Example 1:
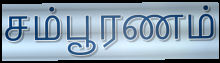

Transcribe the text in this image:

சம்பூரணம்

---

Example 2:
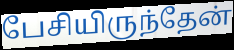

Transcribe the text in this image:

பேசியிருந்தேன்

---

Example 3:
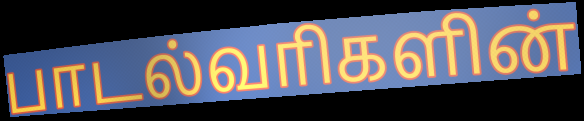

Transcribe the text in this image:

பாடல்வரிகளின்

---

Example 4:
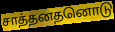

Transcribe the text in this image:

சாத்தனதனொடு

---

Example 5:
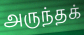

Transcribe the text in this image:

அருந்தக்